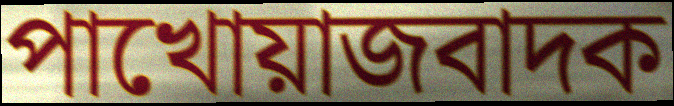
পাখোয়াজবাদক